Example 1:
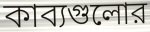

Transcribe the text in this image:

কাব্যগুলোর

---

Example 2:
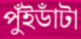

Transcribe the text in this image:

পুঁইডাঁটা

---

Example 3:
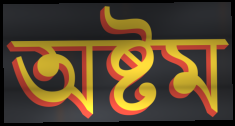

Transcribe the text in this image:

অষ্টম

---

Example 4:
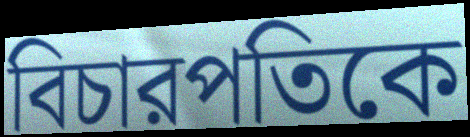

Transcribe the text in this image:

বিচারপতিকে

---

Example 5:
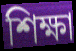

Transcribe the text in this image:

শিক্ষা